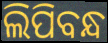
ଲିପିବନ୍ଧ